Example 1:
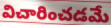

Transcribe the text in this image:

విచారించడమే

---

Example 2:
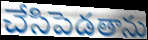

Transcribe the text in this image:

చేసిపెడతాను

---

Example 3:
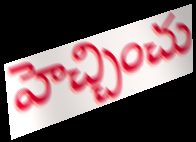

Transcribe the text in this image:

హెచ్చించు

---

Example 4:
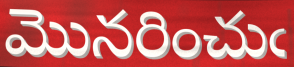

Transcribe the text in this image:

మొనరించుఁ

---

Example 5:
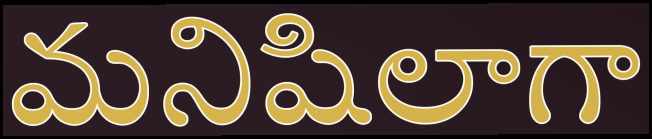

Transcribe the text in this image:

మనిషిలాగా